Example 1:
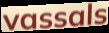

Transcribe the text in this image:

vassals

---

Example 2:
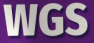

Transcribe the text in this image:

WGS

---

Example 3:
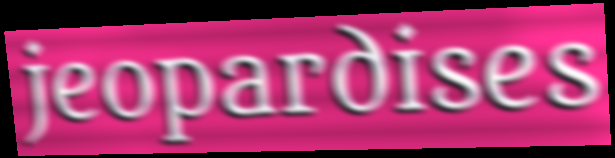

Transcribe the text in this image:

jeopardises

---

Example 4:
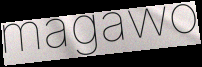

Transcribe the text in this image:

magawo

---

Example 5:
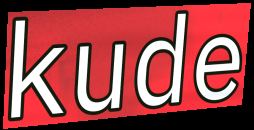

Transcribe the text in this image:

kude